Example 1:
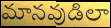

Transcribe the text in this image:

మానవుడిలా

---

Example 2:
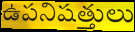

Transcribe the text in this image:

ఉపనిషత్తులు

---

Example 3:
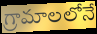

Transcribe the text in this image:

గ్రామాలలోనే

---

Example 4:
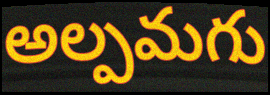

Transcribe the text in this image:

అల్పమగు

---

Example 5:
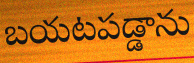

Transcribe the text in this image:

బయటపడ్డాను